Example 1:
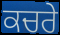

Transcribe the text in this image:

ਕਚਰੇ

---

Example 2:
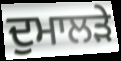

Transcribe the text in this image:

ਦੁਮਾਲੜੇ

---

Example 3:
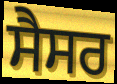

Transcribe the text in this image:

ਸੈਸਰ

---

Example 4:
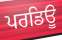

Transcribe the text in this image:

ਪਰਡਿਊ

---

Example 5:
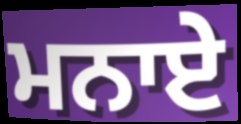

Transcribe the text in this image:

ਮਨਾਏ